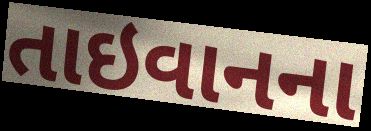
તાઇવાનના